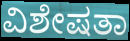
ವಿಶೇಷತಾ